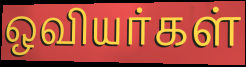
ஒவியர்கள்